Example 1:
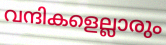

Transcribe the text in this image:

വന്ദികളെല്ലാരും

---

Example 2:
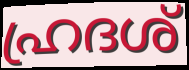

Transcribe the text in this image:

ഹ്രദശ്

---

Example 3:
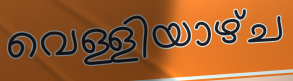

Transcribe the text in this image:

വെള്ളിയാഴ്‌ച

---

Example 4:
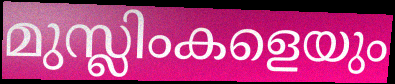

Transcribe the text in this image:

മുസ്ലിംകളെയും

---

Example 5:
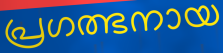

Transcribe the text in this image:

പ്രഗത്ഭനായ